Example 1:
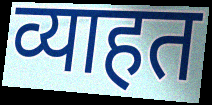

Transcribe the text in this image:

व्याहत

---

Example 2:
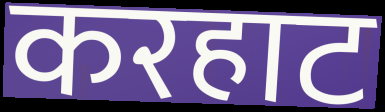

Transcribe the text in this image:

करहाट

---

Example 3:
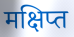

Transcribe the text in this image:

मक्षिप्त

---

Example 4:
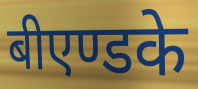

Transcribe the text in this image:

बीएण्डके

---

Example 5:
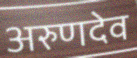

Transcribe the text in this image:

अरुणदेव